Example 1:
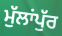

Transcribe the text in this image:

ਮੁੱਲਾਂਪੁੱਰ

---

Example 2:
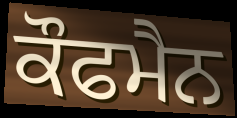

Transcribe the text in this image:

ਕੌਫਮੈਨ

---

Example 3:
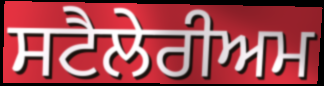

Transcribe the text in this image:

ਸਟੈਲੇਰੀਅਮ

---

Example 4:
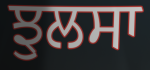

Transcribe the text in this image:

ਝੁਲਸਾ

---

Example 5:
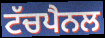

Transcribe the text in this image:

ਟੱਚਪੈਨਲ